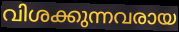
വിശക്കുന്നവരായ